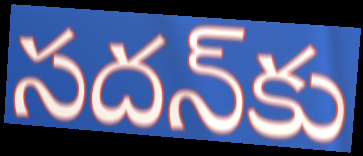
సదన్‌కు